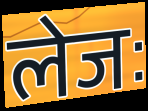
लेजः